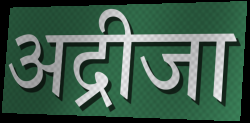
अद्रीजा